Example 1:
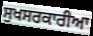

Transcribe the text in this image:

ਸੁਖਸਰਕਾਰੀਆ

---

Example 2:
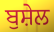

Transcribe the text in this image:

ਬੁਸ਼ੇਲ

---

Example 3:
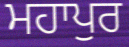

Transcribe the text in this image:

ਮਹਾਪੁਰ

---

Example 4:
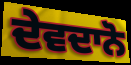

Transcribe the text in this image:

ਦੇਵਦਾਨੋ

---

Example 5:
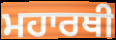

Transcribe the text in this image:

ਮਹਾਰਥੀ